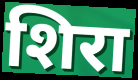
शिरा